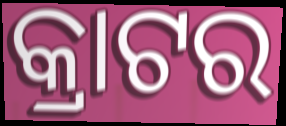
କ୍ରାଟର